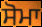
ਸੋਮਾ